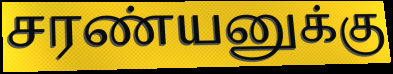
சரண்யனுக்கு